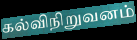
கல்விநிறுவனம்